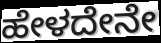
ಹೇಳದೇನೇ